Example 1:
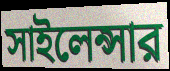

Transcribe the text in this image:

সাইলেন্সার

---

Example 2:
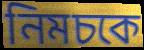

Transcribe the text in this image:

নিমচকে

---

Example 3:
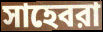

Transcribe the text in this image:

সাহেবরা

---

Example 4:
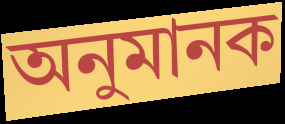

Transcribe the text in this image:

অনুমানক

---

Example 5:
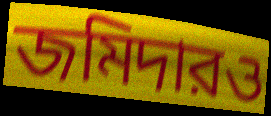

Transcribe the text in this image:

জমিদারও